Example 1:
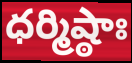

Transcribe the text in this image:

ధర్మిష్ఠాః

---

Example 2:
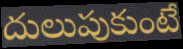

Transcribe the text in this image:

దులుపుకుంటే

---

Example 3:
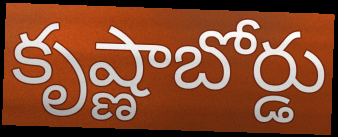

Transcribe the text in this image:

కృష్ణాబోర్డు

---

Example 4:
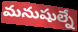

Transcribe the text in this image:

మనుషుల్నే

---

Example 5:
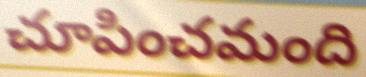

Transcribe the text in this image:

చూపించమంది